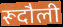
रूदौली